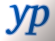
yp